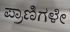
ಪ್ರಾಣಿಗಳೇ